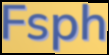
Fsph